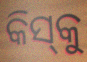
କିସ୍‌କୁ